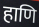
हाणि